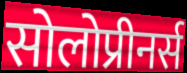
सोलोप्रीनर्स